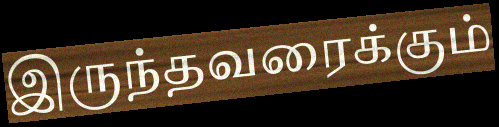
இருந்தவரைக்கும்